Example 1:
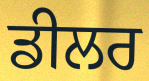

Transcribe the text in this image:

ਡੀਲਰ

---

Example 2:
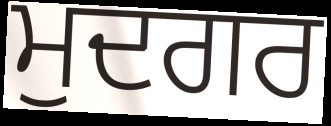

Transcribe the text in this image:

ਮੁਦਗਰ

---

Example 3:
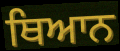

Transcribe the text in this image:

ਥਿਆਨ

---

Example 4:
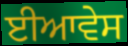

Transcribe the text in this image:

ਈਆਵੇਸ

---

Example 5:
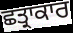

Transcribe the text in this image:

ਛਤ੍ਰਾਕਾਰ